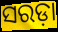
ସରଡ଼ା